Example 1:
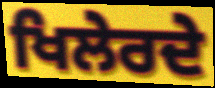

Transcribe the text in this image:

ਖਿਲੇਰਦੇ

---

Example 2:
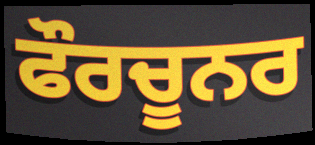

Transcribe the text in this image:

ਫੌਰਚੂਨਰ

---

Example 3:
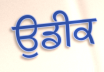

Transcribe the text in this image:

ਉਡੀਕ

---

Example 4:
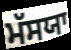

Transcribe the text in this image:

ਮੱਸਯਾ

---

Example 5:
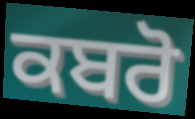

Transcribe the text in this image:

ਕਬਰੋ